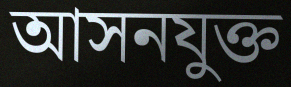
আসনযুক্ত